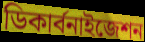
ডিকার্বনাইজেশন